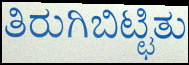
ತಿರುಗಿಬಿಟ್ಟಿತು